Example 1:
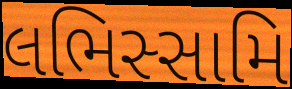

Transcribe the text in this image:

લભિસ્સામિ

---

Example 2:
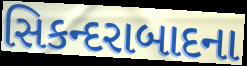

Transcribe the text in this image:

સિકન્દરાબાદના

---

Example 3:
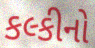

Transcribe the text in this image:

કલ્કીનો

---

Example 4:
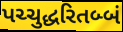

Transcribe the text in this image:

પચ્ચુદ્ધરિતબ્બં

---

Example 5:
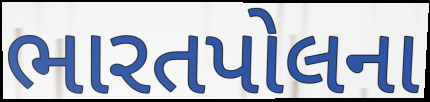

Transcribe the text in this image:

ભારતપોલના